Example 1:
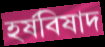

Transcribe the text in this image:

হর্ষবিষাদ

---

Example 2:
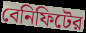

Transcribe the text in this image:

বেনিফিটের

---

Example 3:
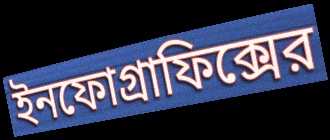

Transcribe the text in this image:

ইনফোগ্রাফিক্সের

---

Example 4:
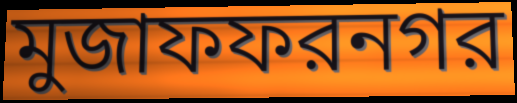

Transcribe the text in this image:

মুজাফফরনগর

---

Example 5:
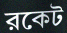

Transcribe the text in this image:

রকেট